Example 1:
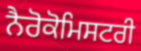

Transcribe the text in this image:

ਨੈਰੋਕੋਮਿਸਟਰੀ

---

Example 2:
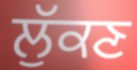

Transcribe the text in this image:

ਲੁੱਕਣ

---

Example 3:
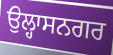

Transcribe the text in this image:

ਉਲ੍ਹਾਸਨਗਰ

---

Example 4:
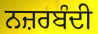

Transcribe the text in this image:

ਨਜ਼ਰਬੰਦੀ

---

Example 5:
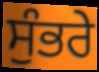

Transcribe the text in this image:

ਸੁੰਭਰੇ